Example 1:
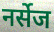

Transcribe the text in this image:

नर्सेज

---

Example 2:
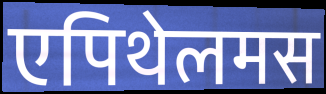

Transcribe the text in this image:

एपिथेलमस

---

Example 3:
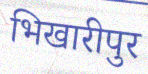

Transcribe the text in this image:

भिखारीपुर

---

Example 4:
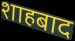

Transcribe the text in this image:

शाहबाद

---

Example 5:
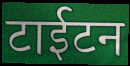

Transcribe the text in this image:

टाईटन